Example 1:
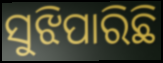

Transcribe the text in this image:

ସୁଝିପାରିଛି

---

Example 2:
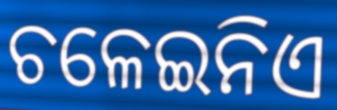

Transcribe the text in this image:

ଚଳେଇନିଏ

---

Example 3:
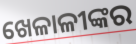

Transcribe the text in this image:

ଖେଳାଳୀଙ୍କର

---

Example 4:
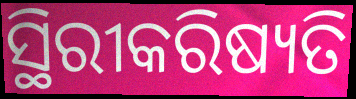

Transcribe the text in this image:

ସ୍ଥିରୀକରିଷ୍ଯତି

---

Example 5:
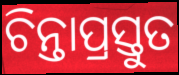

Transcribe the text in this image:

ଚିନ୍ତାପ୍ରସ୍ତୁତ